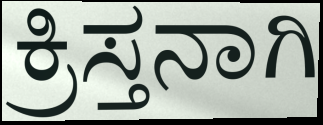
ಕ್ರಿಸ್ತನಾಗಿ